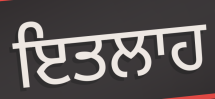
ਇਤਲਾਹ